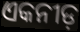
ଏକନୀଡ଼